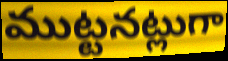
ముట్టనట్లుగా